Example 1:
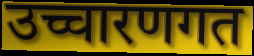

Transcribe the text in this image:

उच्चारणगत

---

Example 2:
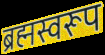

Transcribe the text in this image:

ब्रह्मस्वरूप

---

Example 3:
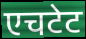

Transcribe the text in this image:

एचटेट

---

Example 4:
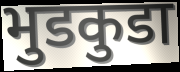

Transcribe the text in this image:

भुडकुडा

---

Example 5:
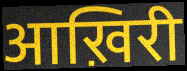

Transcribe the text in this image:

आख़िरी